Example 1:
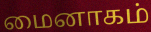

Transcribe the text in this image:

மைனாகம்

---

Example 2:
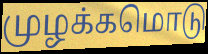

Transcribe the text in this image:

முழக்கமொடு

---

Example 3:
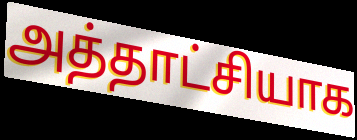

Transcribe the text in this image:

அத்தாட்சியாக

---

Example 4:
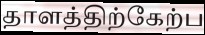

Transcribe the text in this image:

தாளத்திற்கேற்ப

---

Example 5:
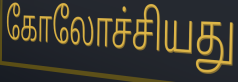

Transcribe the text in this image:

கோலோச்சியது